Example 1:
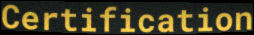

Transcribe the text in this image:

Certification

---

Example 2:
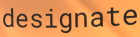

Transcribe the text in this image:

designate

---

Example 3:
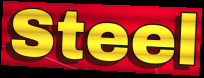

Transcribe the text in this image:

Steel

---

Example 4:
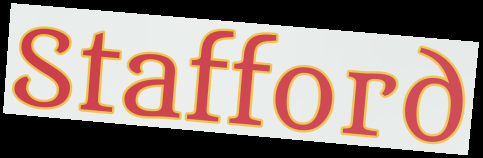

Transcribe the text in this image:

Stafford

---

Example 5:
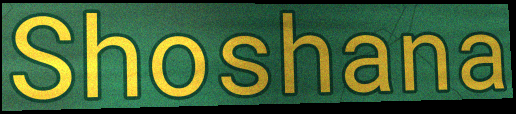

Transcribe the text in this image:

Shoshana